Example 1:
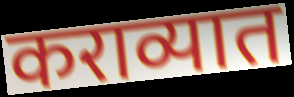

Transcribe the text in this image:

कराव्यात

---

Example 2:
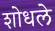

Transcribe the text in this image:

शोधले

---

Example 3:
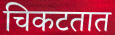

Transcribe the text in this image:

चिकटतात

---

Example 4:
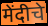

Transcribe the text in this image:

मेंदीचे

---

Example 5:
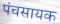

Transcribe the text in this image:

पंचसायक